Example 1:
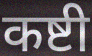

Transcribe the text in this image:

कष्टी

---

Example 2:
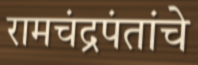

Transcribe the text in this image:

रामचंद्रपंतांचे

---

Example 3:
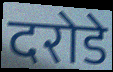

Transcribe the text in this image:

दरोडे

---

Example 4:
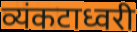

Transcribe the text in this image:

व्यंकटाध्वरी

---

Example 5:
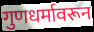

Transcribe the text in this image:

गुणधर्मावरून